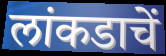
लांकडाचें